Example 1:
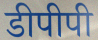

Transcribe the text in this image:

डीपीपी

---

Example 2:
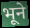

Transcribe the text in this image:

भूने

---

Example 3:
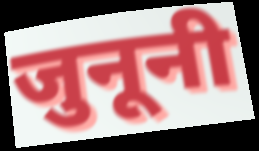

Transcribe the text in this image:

जुनूनी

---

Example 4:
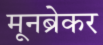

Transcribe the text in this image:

मूनब्रेकर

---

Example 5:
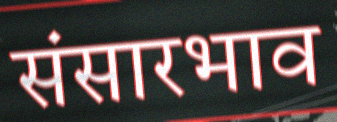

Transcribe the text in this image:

संसारभाव